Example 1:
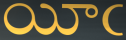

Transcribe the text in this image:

యీఁ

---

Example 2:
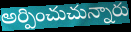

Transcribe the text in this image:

అర్పించుచున్నారు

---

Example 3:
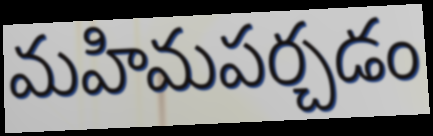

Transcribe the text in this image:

మహిమపర్చడం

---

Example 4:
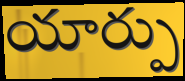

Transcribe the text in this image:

యార్పు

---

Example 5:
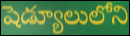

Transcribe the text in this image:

షెడ్యూలులోని